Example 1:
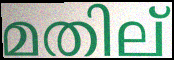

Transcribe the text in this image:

മതില്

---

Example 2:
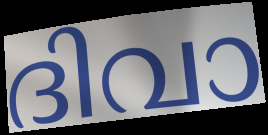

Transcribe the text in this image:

ദിവാ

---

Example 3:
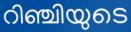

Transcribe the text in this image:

റിഞ്ചിയുടെ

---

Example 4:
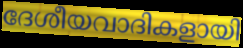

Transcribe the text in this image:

ദേശീയവാദികളായി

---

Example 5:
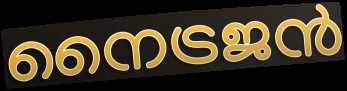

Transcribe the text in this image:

നൈട്രജൻ